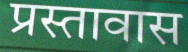
प्रस्तावास